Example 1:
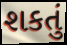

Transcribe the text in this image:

શકતું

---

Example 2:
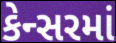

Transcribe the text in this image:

કેન્સરમાં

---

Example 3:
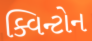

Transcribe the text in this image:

ક્વિન્ટોન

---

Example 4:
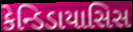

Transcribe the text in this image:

કેન્ડિડાયાસિસ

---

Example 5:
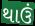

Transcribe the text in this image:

થાઉં